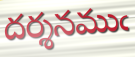
దర్శనముఁ